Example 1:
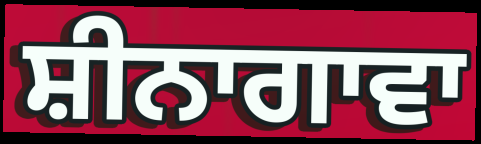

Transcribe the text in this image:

ਸ਼ੀਨਾਗਾਵਾ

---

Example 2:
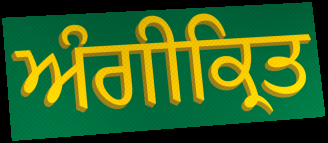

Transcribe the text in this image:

ਅੰਗੀਕ੍ਰਿਤ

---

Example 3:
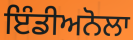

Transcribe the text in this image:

ਇੰਡੀਅਨੋਲਾ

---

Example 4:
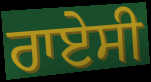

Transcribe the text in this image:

ਰਾਏਸੀ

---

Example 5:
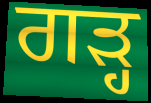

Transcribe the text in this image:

ਗੜ੍ਹ